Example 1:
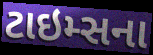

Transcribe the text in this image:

ટાઇમ્સના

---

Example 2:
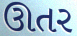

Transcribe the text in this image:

ઊતર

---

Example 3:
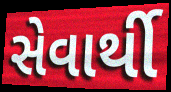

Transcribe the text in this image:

સેવાર્થી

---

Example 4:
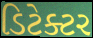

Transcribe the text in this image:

ડિટેક્ટર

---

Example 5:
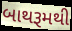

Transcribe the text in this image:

બાથરૂમથી